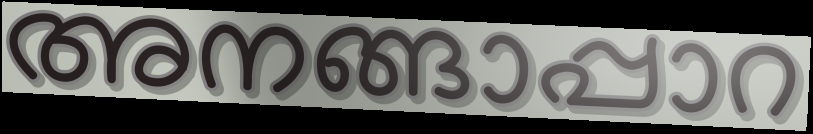
അനങ്ങാപ്പാറ